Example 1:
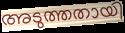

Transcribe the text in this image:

അടുത്തതായി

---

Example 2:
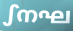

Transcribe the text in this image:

ഽനഘ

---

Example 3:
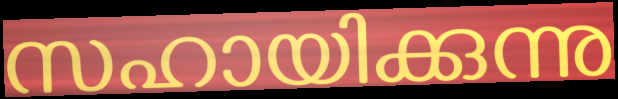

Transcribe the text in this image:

സഹായിക്കുന്നു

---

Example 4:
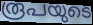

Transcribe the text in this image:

രൂപയുടെ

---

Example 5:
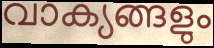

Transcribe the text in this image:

വാക്യങ്ങളും